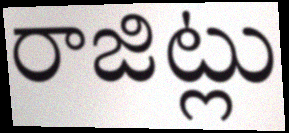
రాజిట్లు